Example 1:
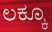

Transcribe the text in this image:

ಲಕ್ಕೂ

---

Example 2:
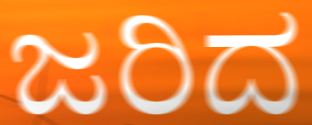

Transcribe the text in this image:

ಜರಿದ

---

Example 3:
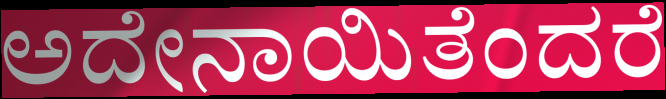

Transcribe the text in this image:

ಅದೇನಾಯಿತೆಂದರೆ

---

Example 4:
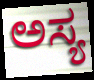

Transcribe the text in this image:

ಅಸ್ಯ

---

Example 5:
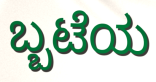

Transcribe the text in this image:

ಬ್ಬಟೆಯ